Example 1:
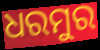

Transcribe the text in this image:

ଧରମୁର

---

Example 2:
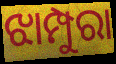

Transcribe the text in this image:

ଝାମ୍ପୁରା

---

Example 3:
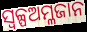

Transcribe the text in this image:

ସ୍ୱଳ୍ପଅମ୍ଳଜାନ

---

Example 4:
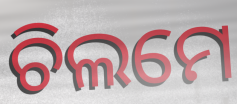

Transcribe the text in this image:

ଚିଲମେ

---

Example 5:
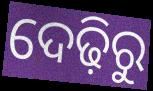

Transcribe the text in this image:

ଦେଢ଼ିରୁ